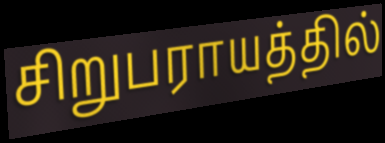
சிறுபராயத்தில்